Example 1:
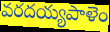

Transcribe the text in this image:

వరదయ్యపాళెం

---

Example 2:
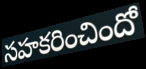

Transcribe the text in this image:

సహకరించిందో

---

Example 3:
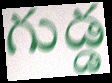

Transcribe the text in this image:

గుడ్డ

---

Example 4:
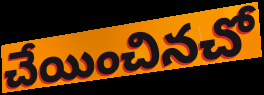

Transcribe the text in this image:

చేయించినచో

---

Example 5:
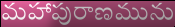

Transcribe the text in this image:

మహాపురాణమును